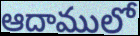
ఆదాములో